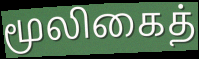
மூலிகைத்